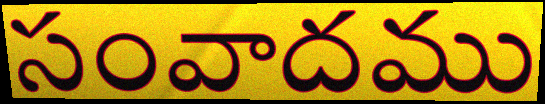
సంవాదము